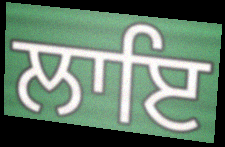
ਲਾਇ